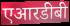
एआरडीबी